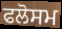
ਫਲੋਸਮ